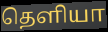
தெளியா